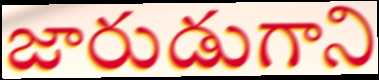
జారుడుగాని